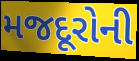
મજદૂરોની